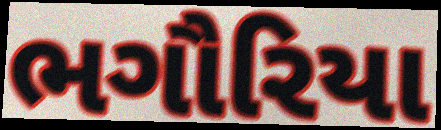
ભગૌરિયા